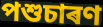
পশুচাৰণ